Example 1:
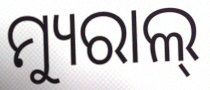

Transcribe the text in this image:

ମ୍ୟୁରାଲ୍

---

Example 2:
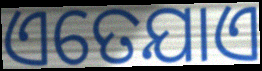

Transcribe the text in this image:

ଏତେଯାଏ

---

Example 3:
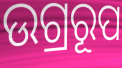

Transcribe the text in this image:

ଉଗ୍ରରୂପ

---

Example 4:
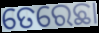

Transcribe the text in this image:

ତେରେଛା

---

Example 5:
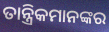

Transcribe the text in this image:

ତାନ୍ତ୍ରିକମାନଙ୍କର